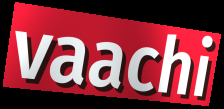
vaachi